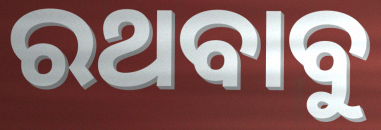
ରଥବାବୁ